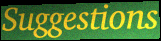
Suggestions